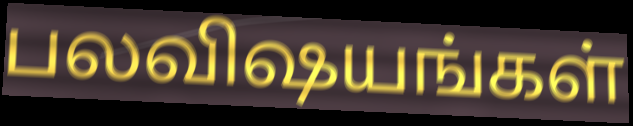
பலவிஷயங்கள்